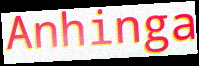
Anhinga